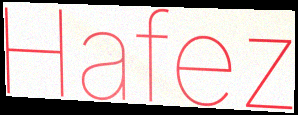
Hafez